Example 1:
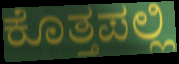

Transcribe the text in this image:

ಕೊತ್ತಪಲ್ಲಿ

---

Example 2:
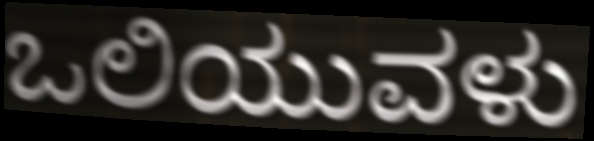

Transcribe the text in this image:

ಒಲಿಯುವಳು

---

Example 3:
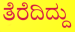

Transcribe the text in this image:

ತೆರೆದಿದ್ದು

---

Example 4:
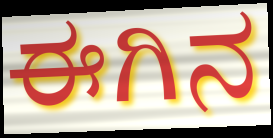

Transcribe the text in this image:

ಈಗಿನ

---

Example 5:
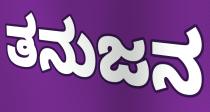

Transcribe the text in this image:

ತನುಜನ